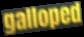
galloped